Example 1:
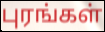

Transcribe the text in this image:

புரங்கள்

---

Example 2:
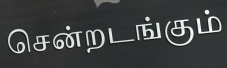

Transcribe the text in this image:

சென்றடங்கும்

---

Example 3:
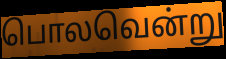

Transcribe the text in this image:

பொலவென்று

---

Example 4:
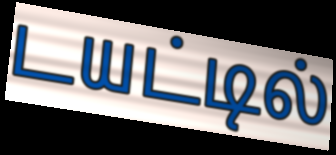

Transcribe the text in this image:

டயட்டில்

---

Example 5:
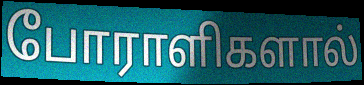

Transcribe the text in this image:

போராளிகளால்